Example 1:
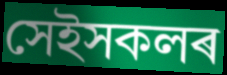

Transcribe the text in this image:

সেইসকলৰ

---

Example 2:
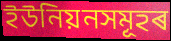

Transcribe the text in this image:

ইউনিয়নসমূহৰ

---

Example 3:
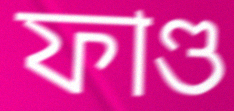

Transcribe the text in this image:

ফাণ্ড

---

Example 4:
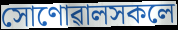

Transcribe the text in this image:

সোণোৱালসকলে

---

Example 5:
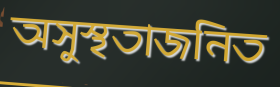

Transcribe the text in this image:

অসুস্থতাজনিত